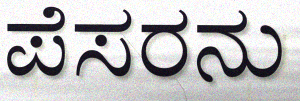
ಪೆಸರನು